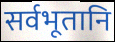
सर्वभूतानि